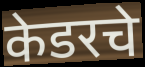
केडरचे